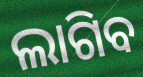
ଲାଗିବ